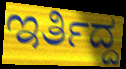
ಇರ್ತಿದ್ದ